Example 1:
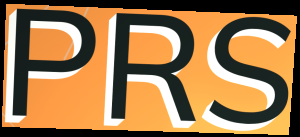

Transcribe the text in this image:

PRS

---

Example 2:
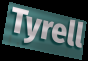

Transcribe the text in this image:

Tyrell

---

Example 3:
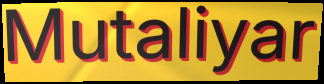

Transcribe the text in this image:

Mutaliyar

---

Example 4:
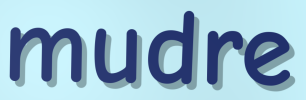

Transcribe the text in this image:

mudre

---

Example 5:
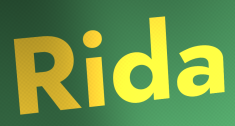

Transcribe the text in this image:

Rida